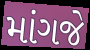
માંગજે